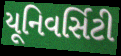
યૂનિવર્સિટી